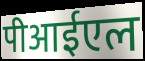
पीआईएल